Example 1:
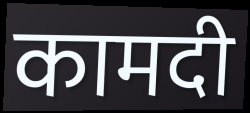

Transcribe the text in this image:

कामदी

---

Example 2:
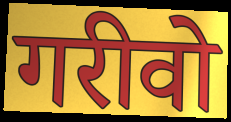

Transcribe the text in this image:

गरीवो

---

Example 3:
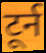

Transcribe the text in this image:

टूर्न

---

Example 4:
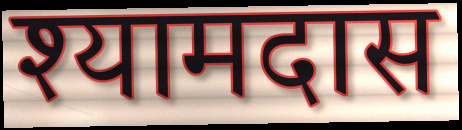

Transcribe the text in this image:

श्यामदास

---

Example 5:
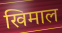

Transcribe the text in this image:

खिमाल